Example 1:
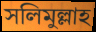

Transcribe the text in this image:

সলিমুল্লাহ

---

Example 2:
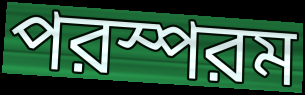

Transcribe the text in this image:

পরস্পরম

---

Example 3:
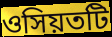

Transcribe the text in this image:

ওসিয়তটি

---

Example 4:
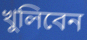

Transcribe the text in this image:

খুলিবেন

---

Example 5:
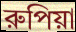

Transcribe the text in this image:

রুপিয়া